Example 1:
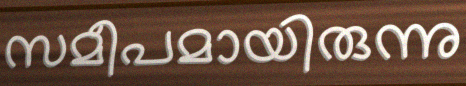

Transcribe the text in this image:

സമീപമായിരുന്നു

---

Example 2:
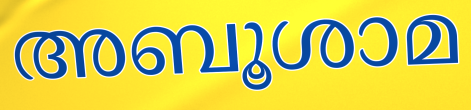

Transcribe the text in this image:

അബൂശാമ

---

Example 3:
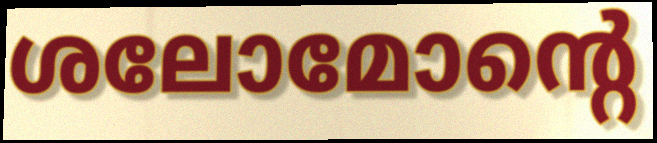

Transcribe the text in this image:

ശലോമോന്റെ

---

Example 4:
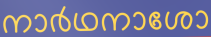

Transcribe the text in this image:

നാർഥനാശോ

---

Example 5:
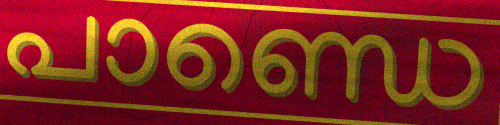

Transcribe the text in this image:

പാണ്ഡെ